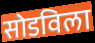
सोडविला